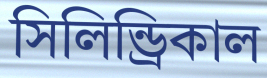
সিলিন্ড্রিকাল